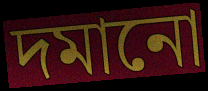
দমানো